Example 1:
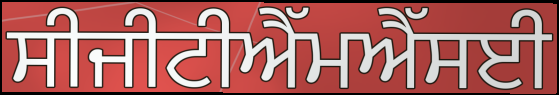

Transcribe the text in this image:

ਸੀਜੀਟੀਐੱਮਐੱਸਈ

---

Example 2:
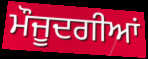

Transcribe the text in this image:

ਮੌਜੂਦਗੀਆਂ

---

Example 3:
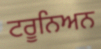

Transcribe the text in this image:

ਟਰੂਨਿਅਨ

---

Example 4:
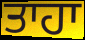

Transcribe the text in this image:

ਤਾਹਾ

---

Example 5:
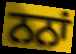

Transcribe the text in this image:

ਨਨਾਂ